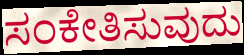
ಸಂಕೇತಿಸುವುದು